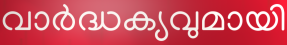
വാർദ്ധക്യവുമായി